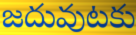
జదువుటకు